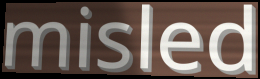
misled